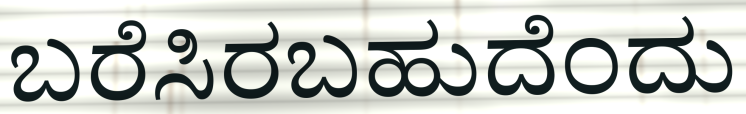
ಬರೆಸಿರಬಹುದೆಂದು